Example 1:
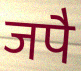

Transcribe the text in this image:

जपै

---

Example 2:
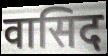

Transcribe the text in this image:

वासिद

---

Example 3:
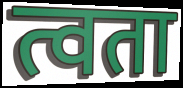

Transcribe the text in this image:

त्वता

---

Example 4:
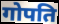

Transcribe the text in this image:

गोपति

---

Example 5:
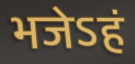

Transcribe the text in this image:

भजेऽहं